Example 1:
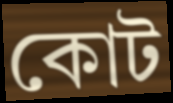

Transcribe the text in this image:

কোট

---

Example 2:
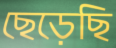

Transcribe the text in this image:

ছেড়েছি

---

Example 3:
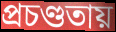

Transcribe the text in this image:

প্রচণ্ডতায়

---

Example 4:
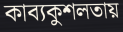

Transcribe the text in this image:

কাব্যকুশলতায়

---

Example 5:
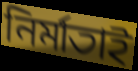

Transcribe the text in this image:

নির্মাতাই